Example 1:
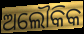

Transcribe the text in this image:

ଅଲୌକିକ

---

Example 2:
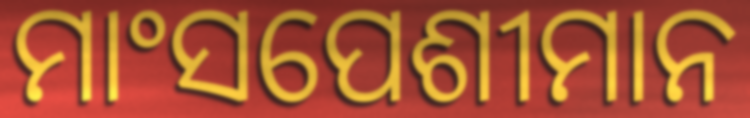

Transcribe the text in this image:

ମାଂସପେଶୀମାନ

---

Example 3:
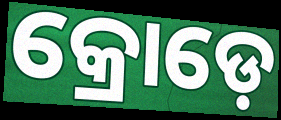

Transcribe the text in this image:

କ୍ରୋଡ଼େ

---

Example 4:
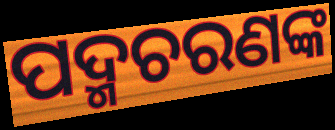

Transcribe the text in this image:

ପଦ୍ମଚରଣଙ୍କ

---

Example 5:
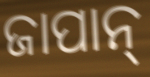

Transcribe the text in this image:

ଜାପାନ୍